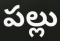
పల్లు